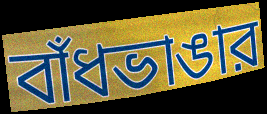
বাঁধভাঙার